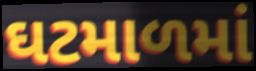
ઘટમાળમાં